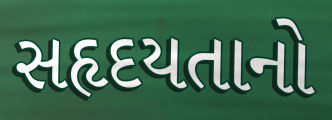
સહૃદયતાનો